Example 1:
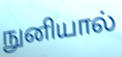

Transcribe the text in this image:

நுனியால்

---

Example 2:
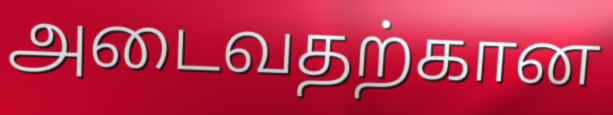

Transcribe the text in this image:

அடைவதற்கான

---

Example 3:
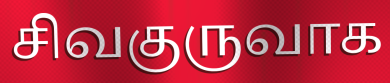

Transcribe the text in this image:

சிவகுருவாக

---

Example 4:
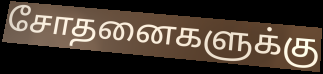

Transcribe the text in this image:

சோதனைகளுக்கு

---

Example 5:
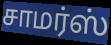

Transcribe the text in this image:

சாமர்ஸ்